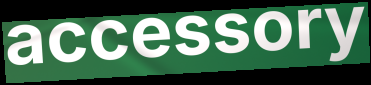
accessory